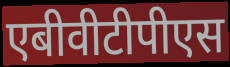
एबीवीटीपीएस